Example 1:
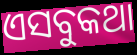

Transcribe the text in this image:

ଏସବୁକଥା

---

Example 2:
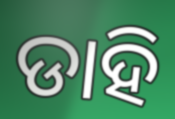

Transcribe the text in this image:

ଡାହି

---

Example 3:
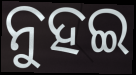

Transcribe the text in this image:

ନୁହଇ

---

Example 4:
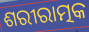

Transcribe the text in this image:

ଶରୀରାତ୍ମକ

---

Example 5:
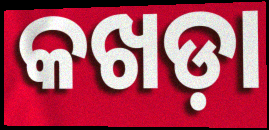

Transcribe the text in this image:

କଖଡ଼ା